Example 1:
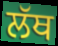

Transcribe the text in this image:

ਲੱਥ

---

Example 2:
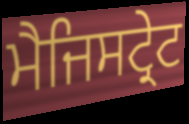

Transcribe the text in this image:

ਮੈਜਿਸਟ੍ਰੇਟ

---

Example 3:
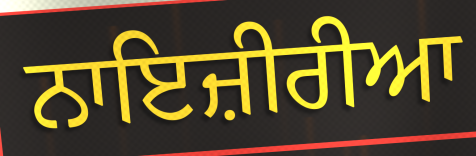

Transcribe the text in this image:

ਨਾਇਜ਼ੀਰੀਆ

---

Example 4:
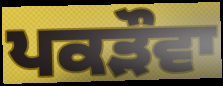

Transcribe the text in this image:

ਪਕੜੌਵਾ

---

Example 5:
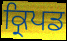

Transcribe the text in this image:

ਕ੍ਰਿਪਡ